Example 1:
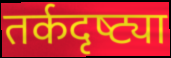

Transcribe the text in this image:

तर्कदृष्ट्या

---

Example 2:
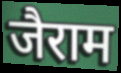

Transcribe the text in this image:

जैराम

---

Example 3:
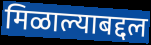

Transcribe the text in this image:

मिळाल्याबद्दल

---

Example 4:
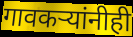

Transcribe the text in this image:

गावकऱ्यांनीही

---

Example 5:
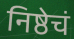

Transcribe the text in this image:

निष्ठेचं